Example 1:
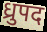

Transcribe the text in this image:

ध्रुपद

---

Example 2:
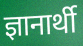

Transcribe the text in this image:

ज्ञानार्थी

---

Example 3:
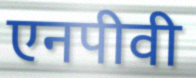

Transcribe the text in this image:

एनपीवी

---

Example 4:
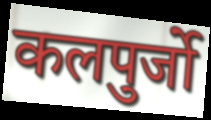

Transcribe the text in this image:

कलपुर्जो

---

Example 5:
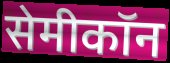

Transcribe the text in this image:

सेमीकॉन